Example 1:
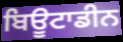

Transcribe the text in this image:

ਬਿਊਟਾਡੀਨ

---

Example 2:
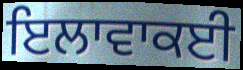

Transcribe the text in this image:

ਇਲਾਵਾਕਈ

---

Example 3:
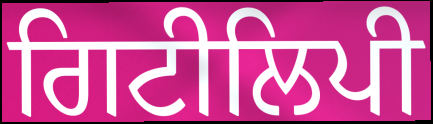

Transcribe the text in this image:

ਗਿਟੀਲਿਪੀ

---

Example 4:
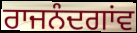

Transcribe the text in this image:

ਰਾਜਨੰਦਗਾਂਵ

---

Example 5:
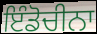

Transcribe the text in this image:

ਇੰਡੋਚੀਨਾ